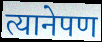
त्यानेपण